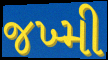
જખ્મી